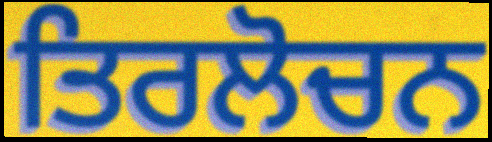
ਤਿਰਲੋਚਨ